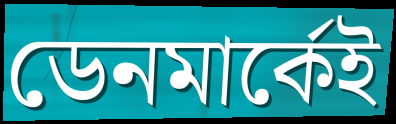
ডেনমার্কেই